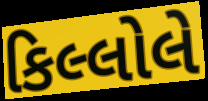
કિલ્લોલે